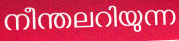
നീന്തലറിയുന്ന